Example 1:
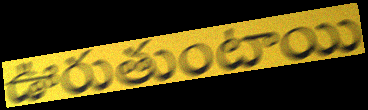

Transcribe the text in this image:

ఊరుతుంటాయి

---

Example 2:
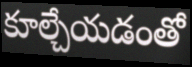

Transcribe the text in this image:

కూల్చేయడంతో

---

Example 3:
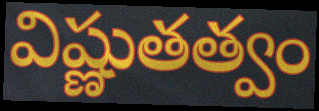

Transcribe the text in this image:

విష్ణుతత్వం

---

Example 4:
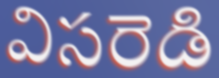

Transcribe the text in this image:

విసరెడి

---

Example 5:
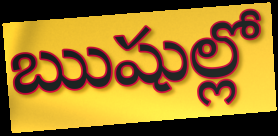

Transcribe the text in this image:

ఋషుల్లో